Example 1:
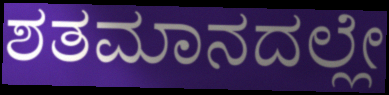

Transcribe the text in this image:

ಶತಮಾನದಲ್ಲೇ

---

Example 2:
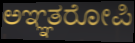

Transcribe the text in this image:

ಅಞ್ಞತರೋಪಿ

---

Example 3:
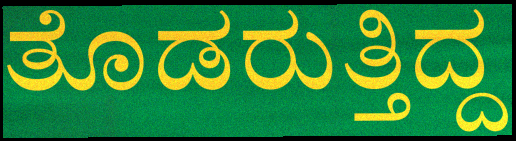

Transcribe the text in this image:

ತೊಡರುತ್ತಿದ್ದ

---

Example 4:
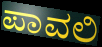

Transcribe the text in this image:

ಪಾವಲಿ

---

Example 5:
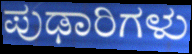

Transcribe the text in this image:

ಪುಢಾರಿಗಳು